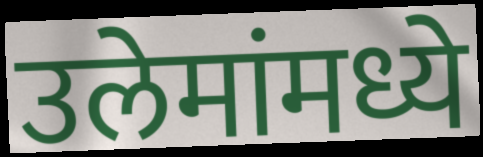
उलेमांमध्ये